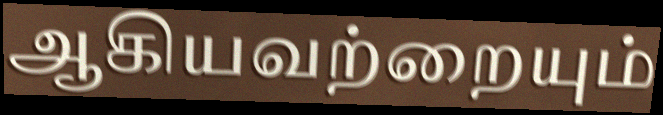
ஆகியவற்றையும்